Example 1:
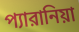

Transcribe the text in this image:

প্যারানিয়া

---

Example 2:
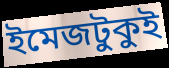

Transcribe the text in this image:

ইমেজটুকুই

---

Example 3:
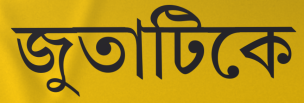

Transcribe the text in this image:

জুতাটিকে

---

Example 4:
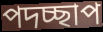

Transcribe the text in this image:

পদচ্ছাপ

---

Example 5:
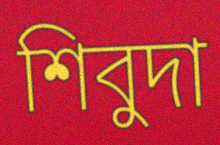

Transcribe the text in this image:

শিবুদা